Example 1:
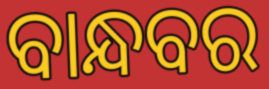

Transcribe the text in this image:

ବାନ୍ଧବର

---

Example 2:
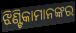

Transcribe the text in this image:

ଝିଣ୍ଟିକାମାନଙ୍କର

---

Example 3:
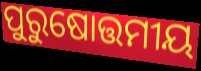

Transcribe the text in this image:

ପୁରୁଷୋତ୍ତମୀୟ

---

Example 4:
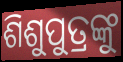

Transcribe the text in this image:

ଶିଶୁପୁତ୍ରଙ୍କୁ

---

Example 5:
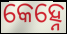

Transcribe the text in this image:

କେହ୍ନେ